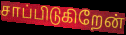
சாப்பிடுகிறேன்